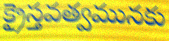
క్రైస్తవత్వమునకు